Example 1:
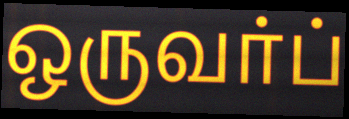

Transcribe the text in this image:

ஒருவர்ப்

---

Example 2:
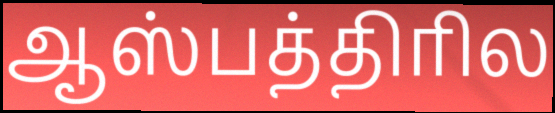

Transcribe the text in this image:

ஆஸ்பத்திரில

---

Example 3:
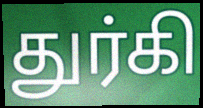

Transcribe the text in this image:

துர்கி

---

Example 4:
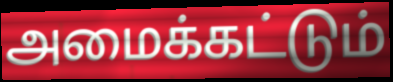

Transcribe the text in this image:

அமைக்கட்டும்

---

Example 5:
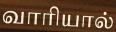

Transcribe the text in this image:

வாரியால்